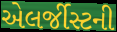
એલર્જીસ્ટની